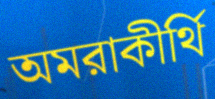
অমরাকীর্থি